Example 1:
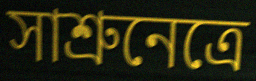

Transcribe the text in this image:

সাশ্রুনেত্রে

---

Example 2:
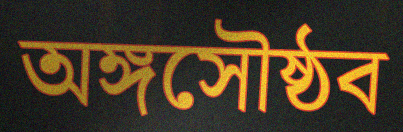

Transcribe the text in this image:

অঙ্গসৌষ্ঠব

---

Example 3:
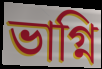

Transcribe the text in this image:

ভাগ্নি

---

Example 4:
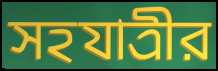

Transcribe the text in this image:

সহযাত্রীর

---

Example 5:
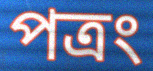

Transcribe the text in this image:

পত্রং